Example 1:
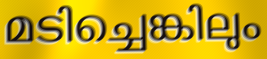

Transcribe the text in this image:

മടിച്ചെങ്കിലും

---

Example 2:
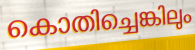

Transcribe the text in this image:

കൊതിച്ചെങ്കിലും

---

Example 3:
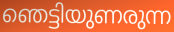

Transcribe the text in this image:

ഞെട്ടിയുണരുന്ന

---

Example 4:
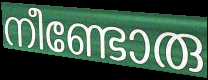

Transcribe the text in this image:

നീണ്ടോരു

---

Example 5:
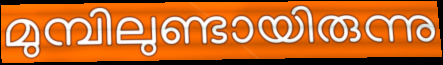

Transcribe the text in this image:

മുമ്പിലുണ്ടായിരുന്നു